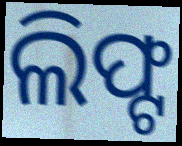
ଲିଫ୍ଟ